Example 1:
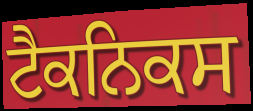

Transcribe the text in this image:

ਟੈਕਨਿਕਸ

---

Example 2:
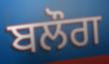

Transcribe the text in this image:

ਬਲੌਗ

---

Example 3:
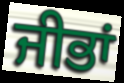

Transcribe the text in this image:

ਜੀਭਾਂ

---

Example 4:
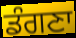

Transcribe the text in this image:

ਡੰਗਣਾ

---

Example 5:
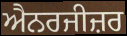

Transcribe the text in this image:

ਐਨਰਜੀਜ਼ਰ